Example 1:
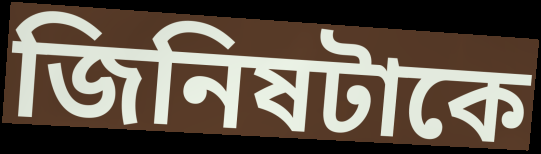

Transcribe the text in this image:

জিনিষটাকে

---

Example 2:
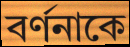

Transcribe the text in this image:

বর্ণনাকে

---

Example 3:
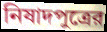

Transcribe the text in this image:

নিষাদপুত্রের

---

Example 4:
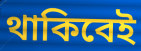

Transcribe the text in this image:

থাকিবেই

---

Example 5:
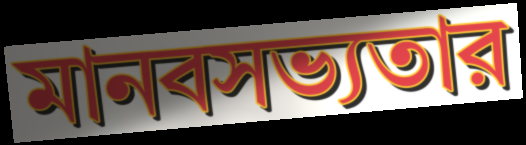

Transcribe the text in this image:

মানবসভ্যতার